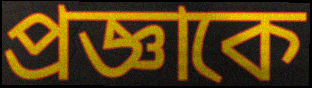
প্রজ্ঞাকে